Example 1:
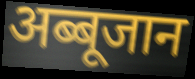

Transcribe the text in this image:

अब्बूजान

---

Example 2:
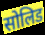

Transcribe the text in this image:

सोलिड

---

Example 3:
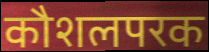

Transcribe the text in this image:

कौशलपरक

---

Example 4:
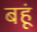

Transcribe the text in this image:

बहूं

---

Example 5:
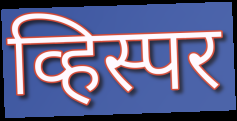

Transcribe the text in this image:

व्हिस्पर